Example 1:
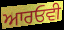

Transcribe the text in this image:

ਆਰਓਵੀ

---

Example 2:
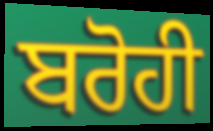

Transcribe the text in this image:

ਬਰੋਹੀ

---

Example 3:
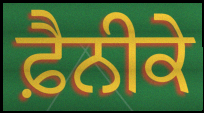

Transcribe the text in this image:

ਫ਼ੈਨੀਕੇ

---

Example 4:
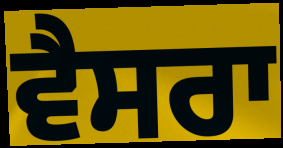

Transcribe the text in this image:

ਵੈਸਰਾ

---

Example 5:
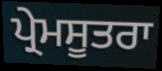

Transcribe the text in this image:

ਪ੍ਰੇਮਸੂਤਰਾ